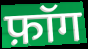
फ़ॉग